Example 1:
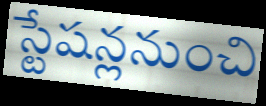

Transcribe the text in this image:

స్టేషన్లనుంచి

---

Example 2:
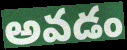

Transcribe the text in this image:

అవడం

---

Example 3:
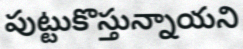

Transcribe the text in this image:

పుట్టుకొస్తున్నాయని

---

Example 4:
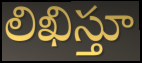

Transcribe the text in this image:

లిఖిస్తూ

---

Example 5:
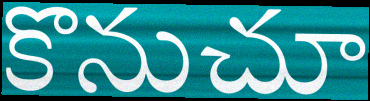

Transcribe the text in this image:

కొనుచూ